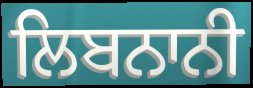
ਲਿਬਨਾਨੀ